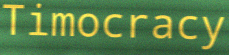
Timocracy